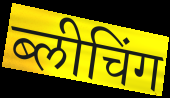
ब्लीचिंग